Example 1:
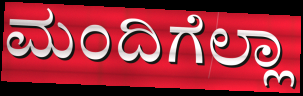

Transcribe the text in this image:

ಮಂದಿಗೆಲ್ಲಾ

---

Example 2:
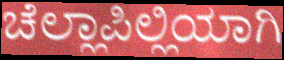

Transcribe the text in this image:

ಚೆಲ್ಲಾಪಿಲ್ಲಿಯಾಗಿ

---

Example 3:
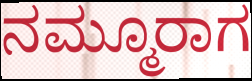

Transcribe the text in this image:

ನಮ್ಮೂರಾಗ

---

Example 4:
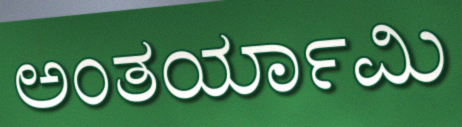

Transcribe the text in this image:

ಅಂತರ್ಯಾಮಿ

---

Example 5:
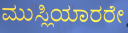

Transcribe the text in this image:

ಮುಸ್ಲಿಯಾರರೇ